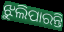
ଝୁଲିପାରନ୍ତି